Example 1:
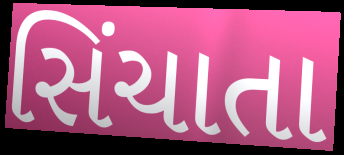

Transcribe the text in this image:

સિંચાતા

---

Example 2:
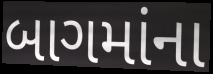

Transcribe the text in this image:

બાગમાંના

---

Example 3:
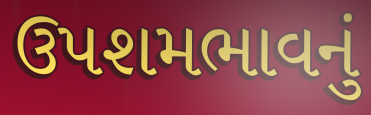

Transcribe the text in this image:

ઉપશમભાવનું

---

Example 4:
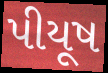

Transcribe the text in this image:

પીયૂષ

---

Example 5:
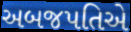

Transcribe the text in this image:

અબજપતિએ